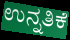
ಉನ್ನತಿಕೆ